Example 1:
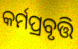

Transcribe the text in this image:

କର୍ମପ୍ରବୃତ୍ତି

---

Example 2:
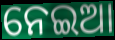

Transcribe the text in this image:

ନେଇଆ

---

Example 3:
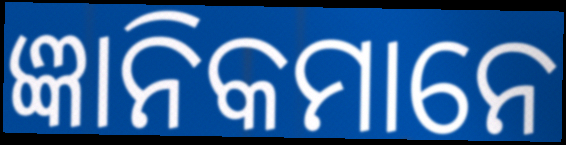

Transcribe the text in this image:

ଜ୍ଞାନିକମାନେ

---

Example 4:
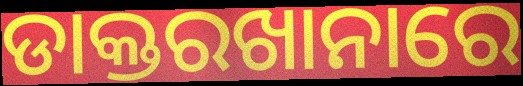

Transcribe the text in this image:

ଡାକ୍ତରଖାନାରେ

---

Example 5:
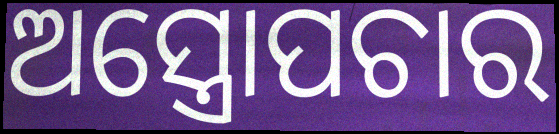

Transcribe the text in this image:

ଅସ୍ତ୍ରୋପଚାର